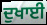
ਦੁਖਾਈ